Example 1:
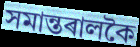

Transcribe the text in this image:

সমান্তৰালকৈ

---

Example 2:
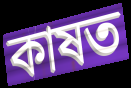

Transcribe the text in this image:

কাষত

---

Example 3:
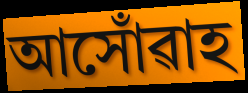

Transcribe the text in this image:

আসোঁৱাহ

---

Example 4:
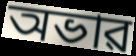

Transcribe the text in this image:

অভাৱ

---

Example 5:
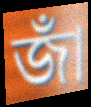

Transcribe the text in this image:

জাঁ